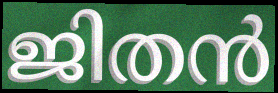
ജിതൻ